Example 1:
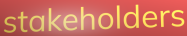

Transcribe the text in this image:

stakeholders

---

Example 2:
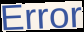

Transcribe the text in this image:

Error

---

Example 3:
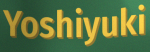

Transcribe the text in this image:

Yoshiyuki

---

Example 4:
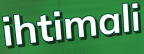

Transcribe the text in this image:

ihtimali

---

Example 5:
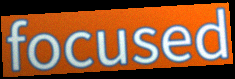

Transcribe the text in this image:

focused